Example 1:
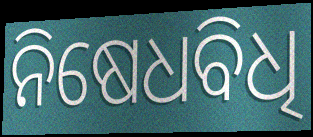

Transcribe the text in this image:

ନିଷେଧବିଧି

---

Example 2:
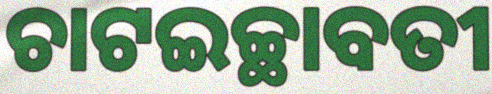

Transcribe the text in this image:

ଚାଟଇଚ୍ଛାବତୀ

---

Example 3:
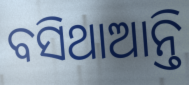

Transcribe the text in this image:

ବସିଥାଆନ୍ତି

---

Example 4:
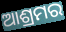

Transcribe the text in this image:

ଆଶ୍ରମର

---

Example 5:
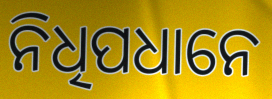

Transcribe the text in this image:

ନିଧିପଧାନେ